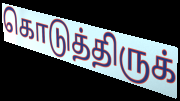
கொடுத்திருக்